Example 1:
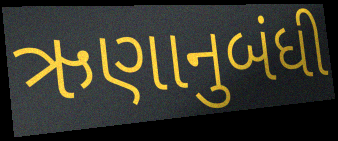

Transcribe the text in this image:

ઋણાનુબંધી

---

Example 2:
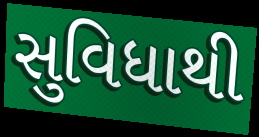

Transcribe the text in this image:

સુવિધાથી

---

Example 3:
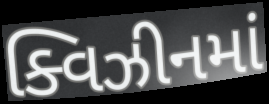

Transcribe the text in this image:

ક્વિઝીનમાં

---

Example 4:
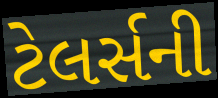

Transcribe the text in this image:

ટેલર્સની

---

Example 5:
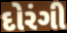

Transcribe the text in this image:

દોરંગી